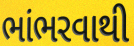
ભાંભરવાથી